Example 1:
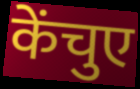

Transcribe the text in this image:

केंचुए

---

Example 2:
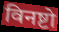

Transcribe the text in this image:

विनष्टो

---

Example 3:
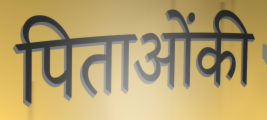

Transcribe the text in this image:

पिताओंकी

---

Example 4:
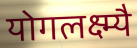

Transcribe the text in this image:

योगलक्ष्म्यै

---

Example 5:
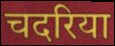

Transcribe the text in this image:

चदरिया